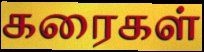
கரைகள்